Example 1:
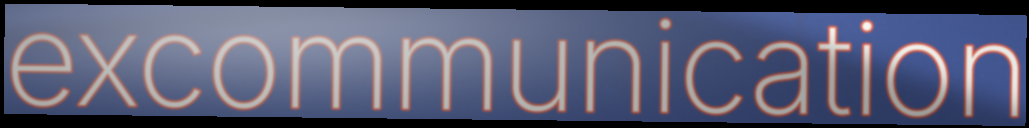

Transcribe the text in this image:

excommunication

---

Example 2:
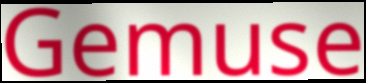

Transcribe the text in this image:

Gemuse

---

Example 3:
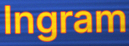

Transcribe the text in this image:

Ingram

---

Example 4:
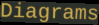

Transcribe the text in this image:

Diagrams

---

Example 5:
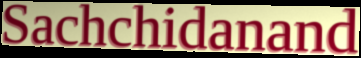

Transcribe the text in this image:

Sachchidanand